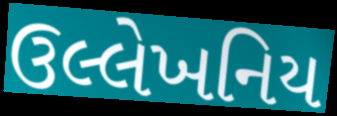
ઉલ્લેખનિય